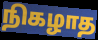
நிகழாத